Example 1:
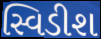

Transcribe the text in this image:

સ્વિડીશ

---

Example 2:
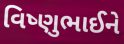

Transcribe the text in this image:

વિષ્ણુભાઈને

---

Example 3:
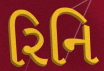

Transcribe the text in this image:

રિનિ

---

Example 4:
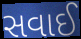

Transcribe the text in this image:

સવાઈ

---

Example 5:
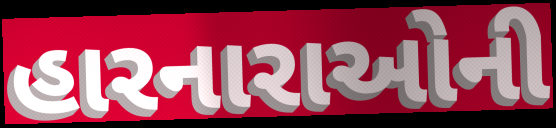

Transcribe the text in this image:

હારનારાઓની